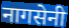
नागसेनी